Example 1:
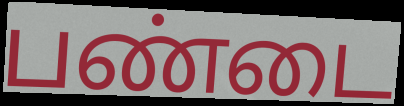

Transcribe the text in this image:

பண்டை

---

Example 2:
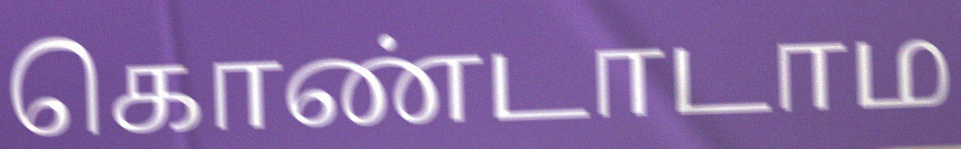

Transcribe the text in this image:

கொண்டாடாம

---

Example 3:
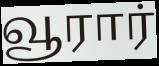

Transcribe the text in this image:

வூரார்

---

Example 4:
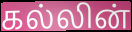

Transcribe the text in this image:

கல்லின்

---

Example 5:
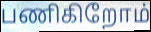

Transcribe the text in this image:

பணிகிறோம்